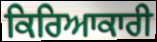
ਕਿਰਿਆਕਾਰੀ